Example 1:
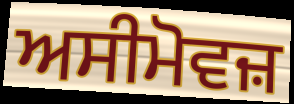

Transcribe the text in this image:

ਅਸੀਮੋਵਜ਼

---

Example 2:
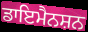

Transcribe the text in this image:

ਡਾਇਮੈਨਸ਼ਨ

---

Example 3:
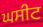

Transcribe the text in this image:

ਘਸੀਟ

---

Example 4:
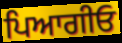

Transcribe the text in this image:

ਪਿਆਗੀਓ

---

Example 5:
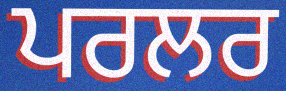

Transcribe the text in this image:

ਪਰਲਰ